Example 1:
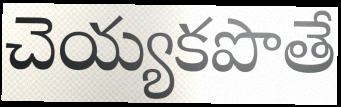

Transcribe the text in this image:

చెయ్యకపొతే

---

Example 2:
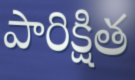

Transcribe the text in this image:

పారిక్షిత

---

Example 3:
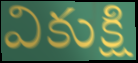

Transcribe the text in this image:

వికుక్షి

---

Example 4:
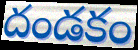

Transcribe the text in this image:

దండకం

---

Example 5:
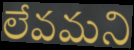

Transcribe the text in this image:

లేవమని